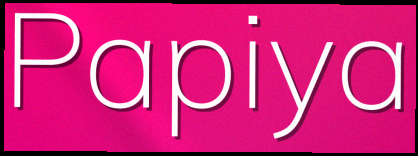
Papiya